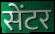
सेंटर